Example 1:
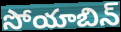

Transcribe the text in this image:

సోయాబిన్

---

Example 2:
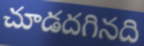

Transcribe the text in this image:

చూడదగినది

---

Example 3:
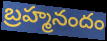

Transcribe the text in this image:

బ్రహ్మనందం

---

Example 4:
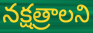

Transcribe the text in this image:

నక్షత్రాలని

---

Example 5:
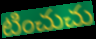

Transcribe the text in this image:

టించుచు